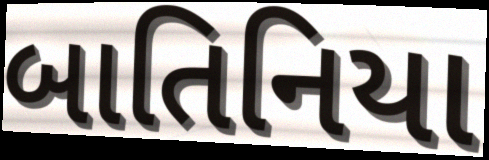
બાતિનિયા